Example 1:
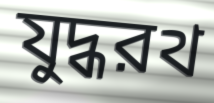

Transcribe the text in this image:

যুদ্ধরথ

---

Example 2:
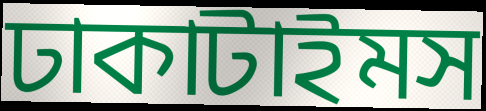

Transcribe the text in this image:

ঢাকাটাইমস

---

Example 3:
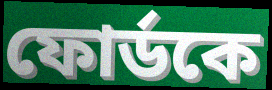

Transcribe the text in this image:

ফোর্ডকে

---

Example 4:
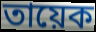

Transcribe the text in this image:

তায়েক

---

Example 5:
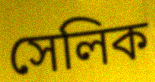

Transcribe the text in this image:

সেলিক